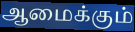
ஆமைக்கும்